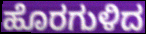
ಹೊರಗುಳಿದ